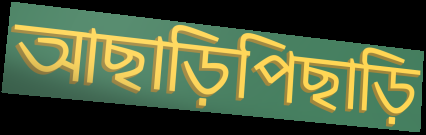
আছাড়িপিছাড়ি